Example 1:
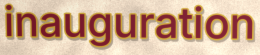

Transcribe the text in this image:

inauguration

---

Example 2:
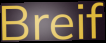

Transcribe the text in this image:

Breif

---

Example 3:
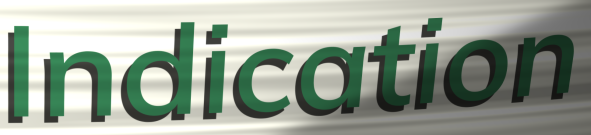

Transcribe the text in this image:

Indication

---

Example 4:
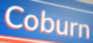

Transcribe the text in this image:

Coburn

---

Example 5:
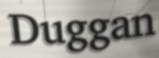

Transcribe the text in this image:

Duggan